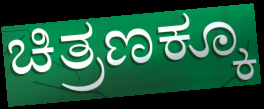
ಚಿತ್ರಣಕ್ಕೂ